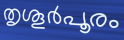
തൃശൂർപൂരം